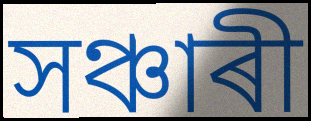
সঞ্চাৰী